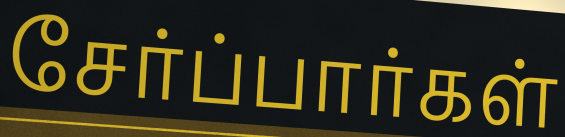
சேர்ப்பார்கள்